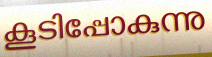
കൂടിപ്പോകുന്നു